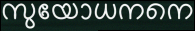
സുയോധനനെ